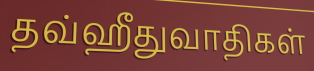
தவ்ஹீதுவாதிகள்